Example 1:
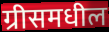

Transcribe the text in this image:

ग्रीसमधील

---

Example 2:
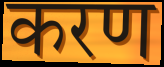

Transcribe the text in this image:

करण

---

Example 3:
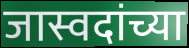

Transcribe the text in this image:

जास्वदांच्या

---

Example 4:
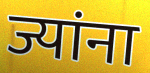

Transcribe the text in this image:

ज्यांना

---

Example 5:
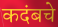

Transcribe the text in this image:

कदंबचे